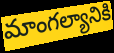
మాంగల్యానికి